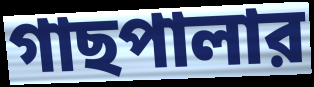
গাছপালার